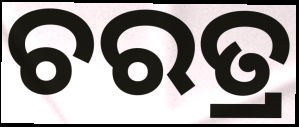
ଚରତ୍ର